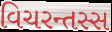
વિચરન્તસ્સ